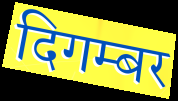
दिगम्बर